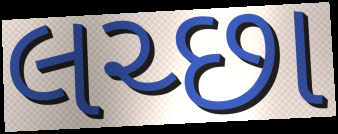
લચ્છા